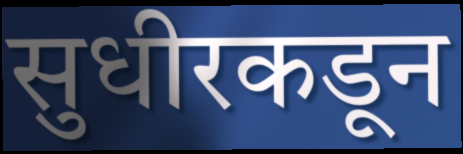
सुधीरकडून